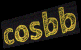
cosbb